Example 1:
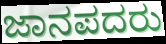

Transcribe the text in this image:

ಜಾನಪದರು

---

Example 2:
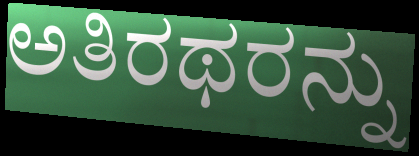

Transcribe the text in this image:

ಅತಿರಥರನ್ನು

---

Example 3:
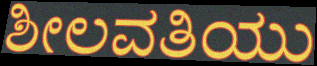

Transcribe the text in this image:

ಶೀಲವತಿಯು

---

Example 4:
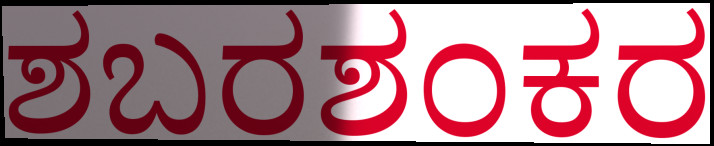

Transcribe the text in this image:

ಶಬರಶಂಕರ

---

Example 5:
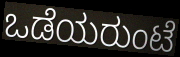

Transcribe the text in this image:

ಒಡೆಯರುಂಟೆ